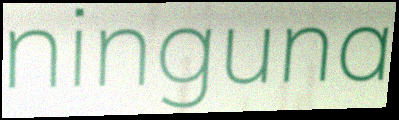
ninguna